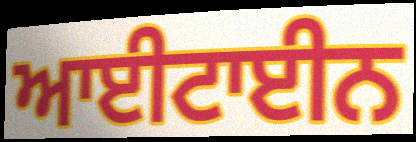
ਆਈਟਾਈਨ